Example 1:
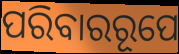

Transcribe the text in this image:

ପରିବାରରୂପେ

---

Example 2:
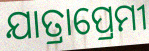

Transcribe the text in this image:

ଯାତ୍ରାପ୍ରେମୀ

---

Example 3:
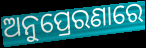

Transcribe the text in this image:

ଅନୁପ୍ରେରଣାରେ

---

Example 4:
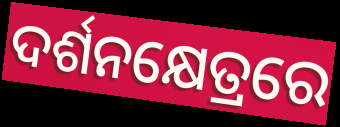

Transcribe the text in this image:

ଦର୍ଶନକ୍ଷେତ୍ରରେ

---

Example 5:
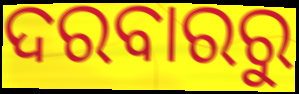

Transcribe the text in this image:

ଦରବାରରୁ